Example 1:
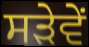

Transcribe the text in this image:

ਸੜੇਵੇਂ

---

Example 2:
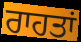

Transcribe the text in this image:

ਰਾਹਤਾਂ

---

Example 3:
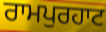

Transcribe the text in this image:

ਰਾਮਪੁਰਹਾਟ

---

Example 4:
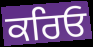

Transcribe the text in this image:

ਕਰਿਓ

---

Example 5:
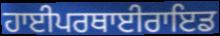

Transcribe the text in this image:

ਹਾਈਪਰਥਾਈਰਾਇਡ